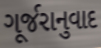
ગૂર્જરાનુવાદ